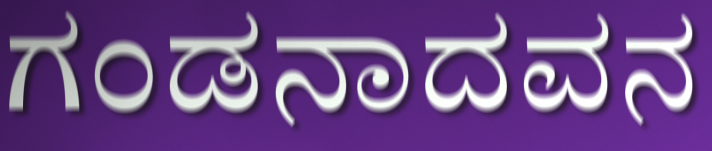
ಗಂಡನಾದವನ